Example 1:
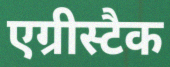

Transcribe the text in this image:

एग्रीस्टैक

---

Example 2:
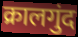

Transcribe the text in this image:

क्रालगुंद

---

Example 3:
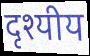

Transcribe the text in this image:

दृश्यीय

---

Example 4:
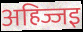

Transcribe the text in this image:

अहिज्जइ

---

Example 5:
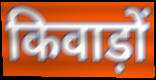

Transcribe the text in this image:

किवाड़ों